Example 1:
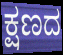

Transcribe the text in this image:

ಕ್ಷಣದ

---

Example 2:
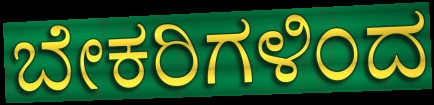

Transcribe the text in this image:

ಬೇಕರಿಗಳಿಂದ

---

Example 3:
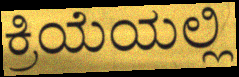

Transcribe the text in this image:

ಕ್ರಿಯೆಯಲ್ಲಿ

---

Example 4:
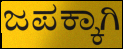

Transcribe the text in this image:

ಜಪಕ್ಕಾಗಿ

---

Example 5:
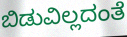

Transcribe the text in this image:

ಬಿಡುವಿಲ್ಲದಂತೆ